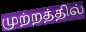
முற்றத்தில்